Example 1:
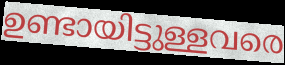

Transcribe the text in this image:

ഉണ്ടായിട്ടുള്ളവരെ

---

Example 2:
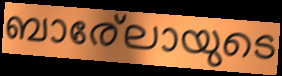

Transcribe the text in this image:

ബാര്ലോയുടെ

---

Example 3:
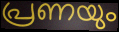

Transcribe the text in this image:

പ്രണയും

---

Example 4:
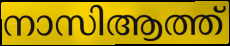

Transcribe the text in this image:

നാസിആത്ത്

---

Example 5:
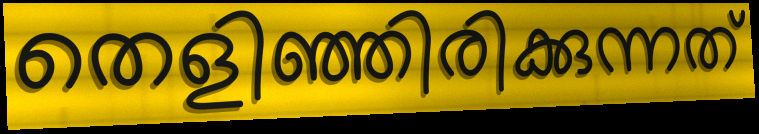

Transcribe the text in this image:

തെളിഞ്ഞിരിക്കുന്നത്